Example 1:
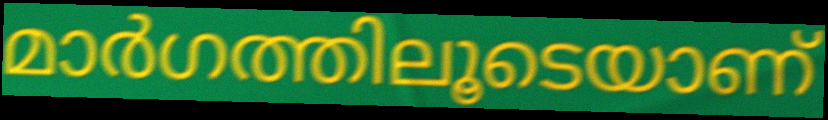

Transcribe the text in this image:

മാർഗത്തിലൂടെയാണ്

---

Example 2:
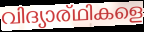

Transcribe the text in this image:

വിദ്യാര്ഥികളെ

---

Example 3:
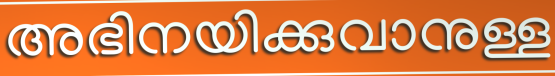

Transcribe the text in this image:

അഭിനയിക്കുവാനുള്ള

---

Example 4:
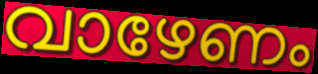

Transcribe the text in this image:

വാഴേണം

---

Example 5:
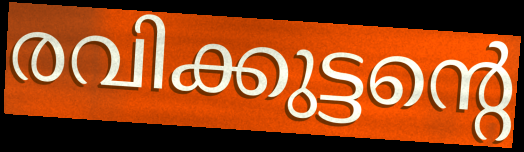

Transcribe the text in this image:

രവിക്കുട്ടന്റെ